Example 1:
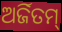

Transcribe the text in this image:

ଅର୍ଜିତମ୍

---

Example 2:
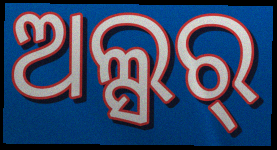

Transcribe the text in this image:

ଅଲ୍ସର୍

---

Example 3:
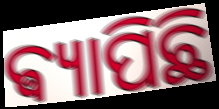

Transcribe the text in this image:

ଵ୍ୟାପିଛି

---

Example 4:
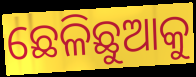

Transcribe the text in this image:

ଛେଳିଛୁଆକୁ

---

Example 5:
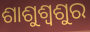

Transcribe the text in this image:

ଶାଶୁଶ୍ୱଶୁର